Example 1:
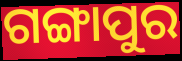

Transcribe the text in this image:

ଗଙ୍ଗାପୁର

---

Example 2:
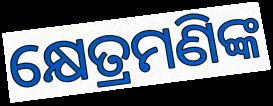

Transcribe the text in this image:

କ୍ଷେତ୍ରମଣିଙ୍କ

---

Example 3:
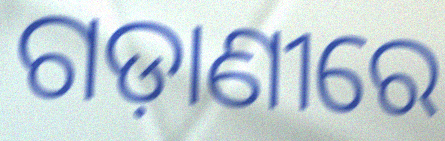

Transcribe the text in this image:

ଗଡ଼ାଣୀରେ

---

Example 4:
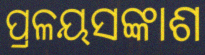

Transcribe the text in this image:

ପ୍ରଳୟସଙ୍କାଶ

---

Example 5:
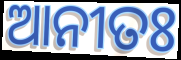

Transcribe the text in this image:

ଆନୀତଃ